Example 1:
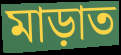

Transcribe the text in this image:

মাড়াত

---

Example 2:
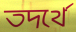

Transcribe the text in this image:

তদর্থে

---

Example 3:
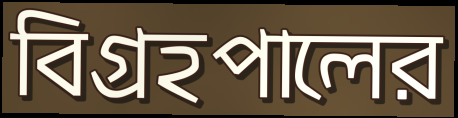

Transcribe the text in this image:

বিগ্রহপালের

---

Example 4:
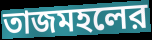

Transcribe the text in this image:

তাজমহলের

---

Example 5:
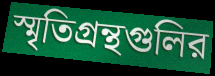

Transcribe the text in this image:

স্মৃতিগ্রন্থগুলির